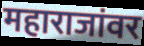
महाराजांवर